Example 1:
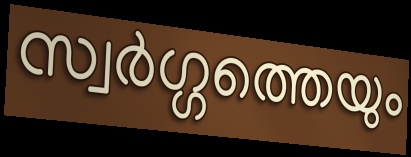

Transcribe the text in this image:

സ്വർഗ്ഗത്തെയും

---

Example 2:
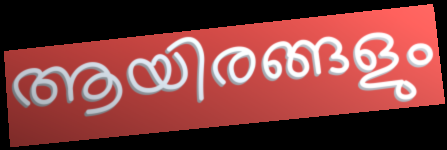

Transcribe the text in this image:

ആയിരങ്ങളും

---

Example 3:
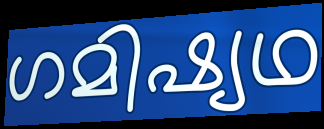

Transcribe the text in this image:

ഗമിഷ്യഥ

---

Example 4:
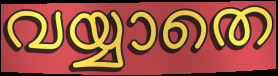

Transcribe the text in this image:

വയ്യാതെ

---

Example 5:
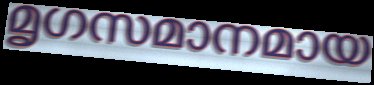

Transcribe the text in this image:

മൃഗസമാനമായ